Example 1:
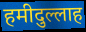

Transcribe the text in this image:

हमीदुल्लाह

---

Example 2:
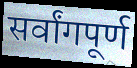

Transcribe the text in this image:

सर्वांगपूर्ण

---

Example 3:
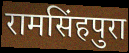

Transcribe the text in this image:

रामसिंहपुरा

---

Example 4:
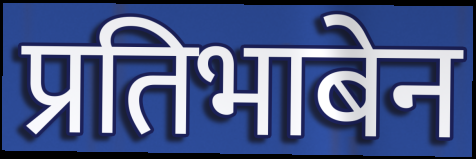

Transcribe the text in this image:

प्रतिभाबेन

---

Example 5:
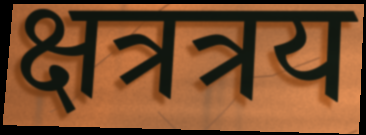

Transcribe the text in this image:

क्षत्रत्रय